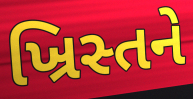
ખ્રિસ્તને